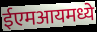
ईएमआयमध्ये